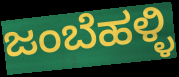
ಜಂಬೆಹಳ್ಳಿ